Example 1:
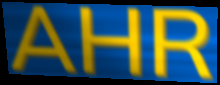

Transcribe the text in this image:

AHR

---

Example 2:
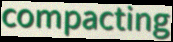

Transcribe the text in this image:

compacting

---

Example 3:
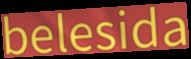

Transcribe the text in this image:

belesida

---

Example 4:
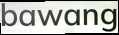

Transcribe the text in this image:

bawang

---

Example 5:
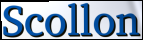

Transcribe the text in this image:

Scollon